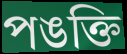
পঙক্তি